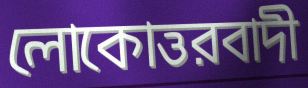
লোকোত্তরবাদী